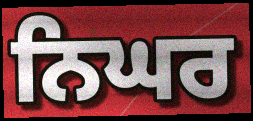
ਨਿਘਰ